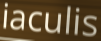
iaculis